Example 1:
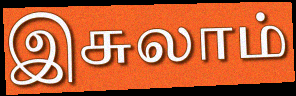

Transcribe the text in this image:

இசுலாம்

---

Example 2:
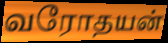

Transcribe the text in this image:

வரோதயன்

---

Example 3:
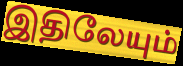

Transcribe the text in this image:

இதிலேயும்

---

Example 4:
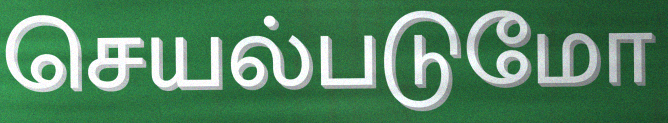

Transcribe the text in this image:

செயல்படுமோ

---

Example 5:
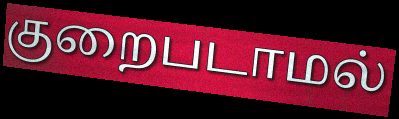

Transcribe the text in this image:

குறைபடாமல்